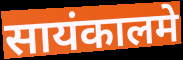
सायंकालमे